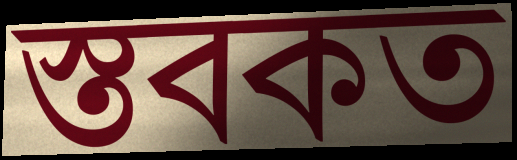
স্তবকত